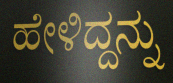
ಹೇಳಿದ್ದನ್ನು